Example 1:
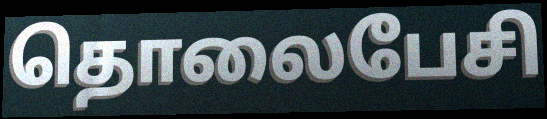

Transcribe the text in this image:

தொலைபேசி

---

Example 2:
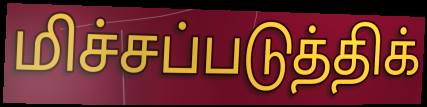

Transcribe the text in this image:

மிச்சப்படுத்திக்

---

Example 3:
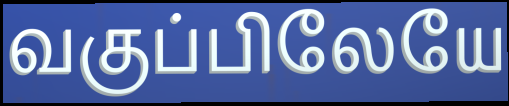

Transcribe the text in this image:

வகுப்பிலேயே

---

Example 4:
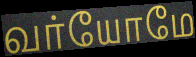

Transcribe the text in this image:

வர்யோமே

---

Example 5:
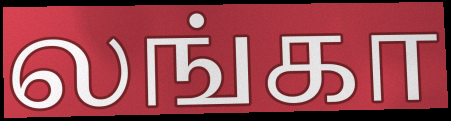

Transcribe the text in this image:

லங்கா